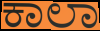
ಕಾಲಾ